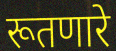
रूतणारे